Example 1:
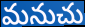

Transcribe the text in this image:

మనుచు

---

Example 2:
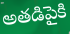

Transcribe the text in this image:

అతడిపైకి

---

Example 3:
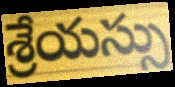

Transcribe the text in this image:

శ్రేయస్సు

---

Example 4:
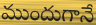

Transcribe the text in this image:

ముందుగానే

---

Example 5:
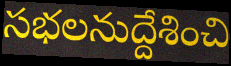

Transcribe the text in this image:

సభలనుద్దేశించి